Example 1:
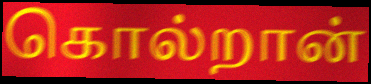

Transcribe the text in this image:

கொல்றான்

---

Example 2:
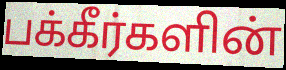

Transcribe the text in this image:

பக்கீர்களின்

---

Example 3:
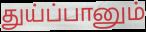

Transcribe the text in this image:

துய்ப்பானும்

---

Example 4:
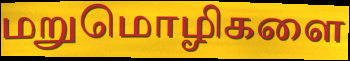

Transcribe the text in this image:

மறுமொழிகளை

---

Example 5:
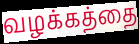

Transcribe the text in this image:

வழக்கத்தை